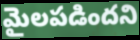
మైలపడిందని